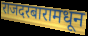
राजदरबारामधून